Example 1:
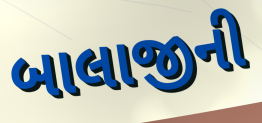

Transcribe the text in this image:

બાલાજીની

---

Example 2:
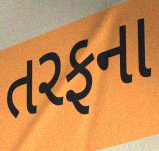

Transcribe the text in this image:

તરફના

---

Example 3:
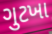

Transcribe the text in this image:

ગુટખા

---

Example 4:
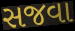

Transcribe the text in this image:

સજવા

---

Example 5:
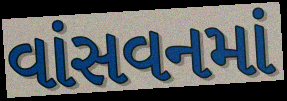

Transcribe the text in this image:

વાંસવનમાં